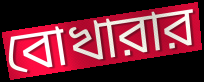
বোখারার